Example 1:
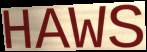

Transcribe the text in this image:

HAWS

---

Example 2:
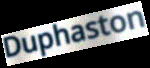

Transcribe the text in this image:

Duphaston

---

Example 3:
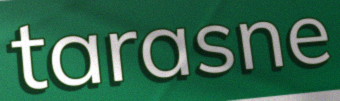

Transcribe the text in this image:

tarasne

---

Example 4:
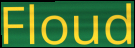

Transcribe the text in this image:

Floud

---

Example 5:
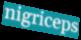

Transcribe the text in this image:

nigriceps